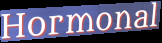
Hormonal